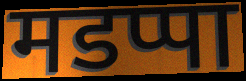
मडप्पा